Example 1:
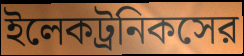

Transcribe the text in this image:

ইলেকট্রনিকসের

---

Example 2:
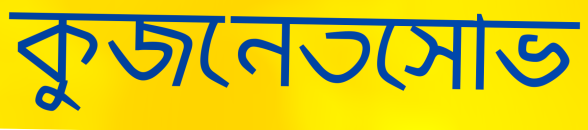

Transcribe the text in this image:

কুজনেতসোভ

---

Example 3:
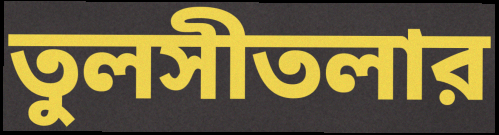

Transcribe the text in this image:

তুলসীতলার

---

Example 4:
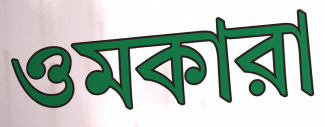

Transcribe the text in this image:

ওমকারা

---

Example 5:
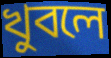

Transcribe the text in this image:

খুবলে